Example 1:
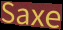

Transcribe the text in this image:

Saxe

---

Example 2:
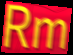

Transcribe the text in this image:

Rm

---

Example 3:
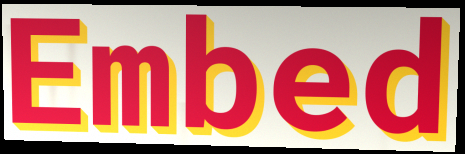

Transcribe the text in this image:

Embed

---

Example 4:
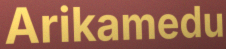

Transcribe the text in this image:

Arikamedu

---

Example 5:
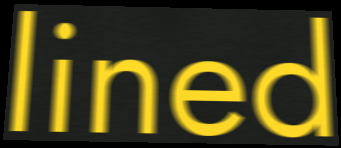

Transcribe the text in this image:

lined